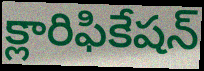
క్లారిఫికేషన్